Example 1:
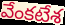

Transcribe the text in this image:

వేంకటేశ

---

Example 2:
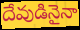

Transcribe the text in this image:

దేవుడినైనా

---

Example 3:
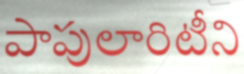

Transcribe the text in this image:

పాపులారిటీని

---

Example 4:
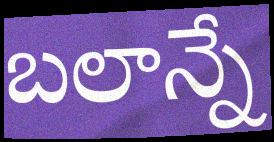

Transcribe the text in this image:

బలాన్నే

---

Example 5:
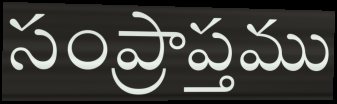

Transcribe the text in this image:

సంప్రాప్తము